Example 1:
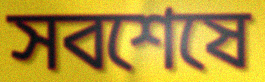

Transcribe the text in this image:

সবশেষে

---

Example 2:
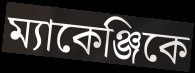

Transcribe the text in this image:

ম্যাকেঞ্জিকে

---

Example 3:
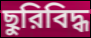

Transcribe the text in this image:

ছুরিবিদ্ধ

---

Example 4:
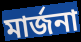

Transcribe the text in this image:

মার্জনা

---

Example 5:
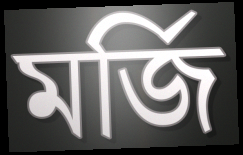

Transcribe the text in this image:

মর্জি